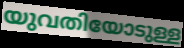
യുവതിയോടുള്ള